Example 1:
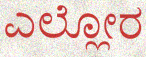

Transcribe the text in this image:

ಎಲ್ಲೋರ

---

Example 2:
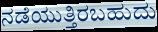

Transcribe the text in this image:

ನಡೆಯುತ್ತಿರಬಹುದು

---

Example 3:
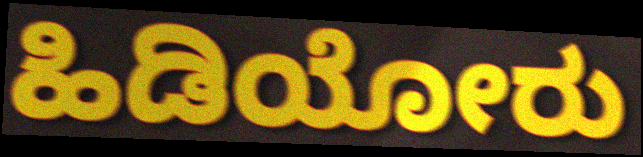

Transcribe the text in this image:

ಹಿಡಿಯೋರು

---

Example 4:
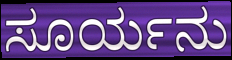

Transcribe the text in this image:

ಸೂರ್ಯನು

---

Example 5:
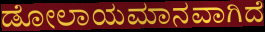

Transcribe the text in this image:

ಡೋಲಾಯಮಾನವಾಗಿದೆ